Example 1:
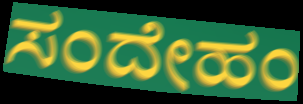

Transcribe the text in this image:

ಸಂದೇಹಂ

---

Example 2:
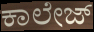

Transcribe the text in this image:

ಕಾಲೇಜ್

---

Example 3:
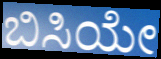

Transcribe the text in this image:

ಬಿಸಿಯೇ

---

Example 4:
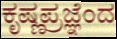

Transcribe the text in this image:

ಕೃಷ್ಣಪ್ರಜ್ಞೆಂದ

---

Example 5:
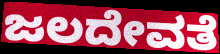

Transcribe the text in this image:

ಜಲದೇವತೆ